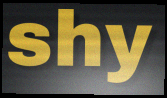
shy